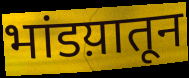
भांडय़ातून